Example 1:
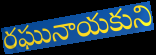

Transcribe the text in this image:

రఘునాయకుని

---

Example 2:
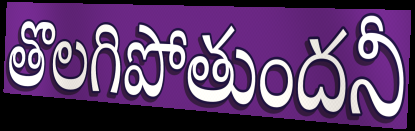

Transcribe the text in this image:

తొలగిపోతుందనీ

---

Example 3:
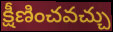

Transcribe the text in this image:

క్షీణించవచ్చు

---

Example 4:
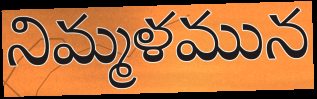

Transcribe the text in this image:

నిమ్మళమున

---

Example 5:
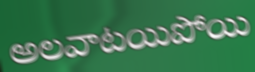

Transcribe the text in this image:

అలవాటయిపోయి